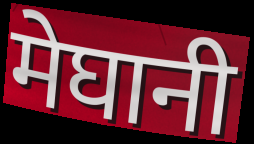
मेघानी